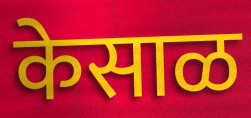
केसाळ